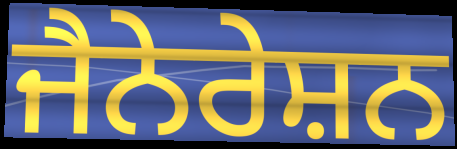
ਜੈਨੇਰੇਸ਼ਨ